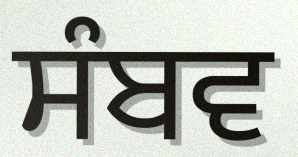
ਸੰਬਵ